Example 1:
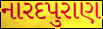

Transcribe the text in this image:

નારદપુરાણ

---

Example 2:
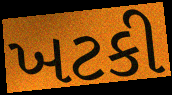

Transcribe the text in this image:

ખટકી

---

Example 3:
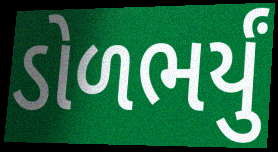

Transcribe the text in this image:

ડોળભર્યું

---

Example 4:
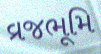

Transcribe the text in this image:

વ્રજભૂમિ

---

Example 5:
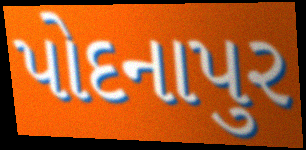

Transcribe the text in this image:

પોદનાપુર